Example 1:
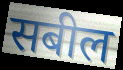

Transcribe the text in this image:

सबील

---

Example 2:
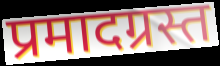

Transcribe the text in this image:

प्रमादग्रस्त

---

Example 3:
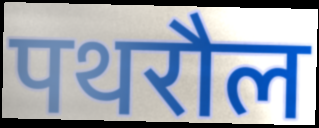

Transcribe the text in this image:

पथरौल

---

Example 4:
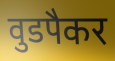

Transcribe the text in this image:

वुडपैकर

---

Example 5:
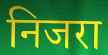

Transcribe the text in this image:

निजरा